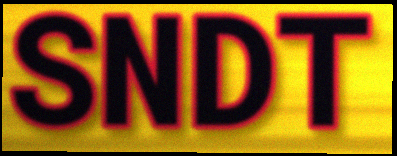
SNDT